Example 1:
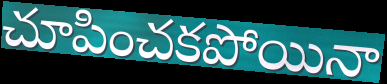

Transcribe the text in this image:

చూపించకపోయినా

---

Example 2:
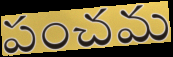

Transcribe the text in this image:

పంచమ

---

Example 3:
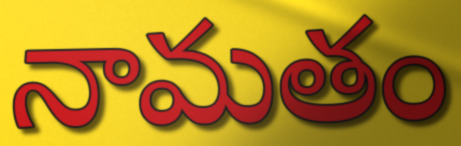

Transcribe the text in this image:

నామతం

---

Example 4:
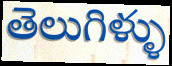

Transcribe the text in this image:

తెలుగిళ్ళు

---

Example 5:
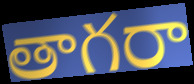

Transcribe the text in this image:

తాగరా